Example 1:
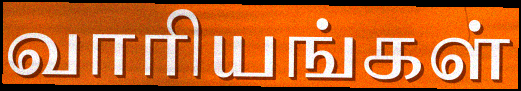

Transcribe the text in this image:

வாரியங்கள்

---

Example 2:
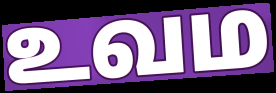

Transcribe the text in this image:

உவம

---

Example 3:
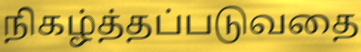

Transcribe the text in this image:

நிகழ்த்தப்படுவதை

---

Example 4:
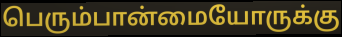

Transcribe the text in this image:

பெரும்பான்மையோருக்கு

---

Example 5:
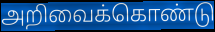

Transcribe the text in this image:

அறிவைக்கொண்டு